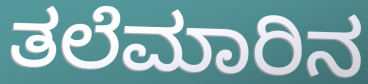
ತಲೆಮಾರಿನ